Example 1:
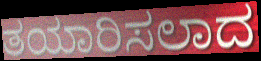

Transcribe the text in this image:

ತಯಾರಿಸಲಾದ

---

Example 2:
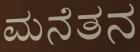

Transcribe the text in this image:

ಮನೆತನ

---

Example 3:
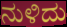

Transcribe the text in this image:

ನುಳಿದು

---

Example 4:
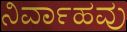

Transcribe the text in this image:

ನಿರ್ವಾಹವು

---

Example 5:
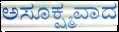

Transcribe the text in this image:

ಅಸೂಕ್ಷ್ಮವಾದ